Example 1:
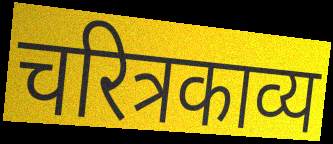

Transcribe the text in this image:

चरित्रकाव्य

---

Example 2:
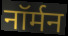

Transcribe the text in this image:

नॉर्मन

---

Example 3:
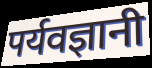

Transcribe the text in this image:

पर्यवज्ञानी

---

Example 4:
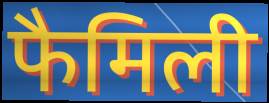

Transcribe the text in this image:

फैमिली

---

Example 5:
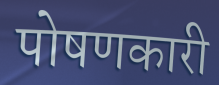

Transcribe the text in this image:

पोषणकारी